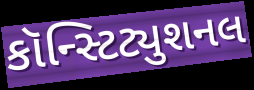
કૉન્સ્ટિટ્યુશનલ